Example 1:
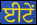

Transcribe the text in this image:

ਈਟੇਂ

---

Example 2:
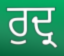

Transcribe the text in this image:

ਰੁਦ੍ਰ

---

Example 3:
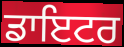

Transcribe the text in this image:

ਡਾਇਟਰ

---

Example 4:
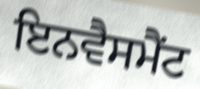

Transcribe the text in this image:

ਇਨਵੈਸਮੈਂਟ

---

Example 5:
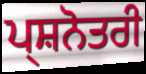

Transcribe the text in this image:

ਪ੍ਸ਼ਨੋਤਰੀ